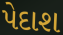
પેદાશ